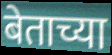
बेताच्या